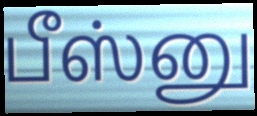
பீஸ்னு